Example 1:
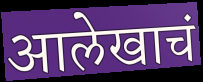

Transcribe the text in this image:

आलेखाचं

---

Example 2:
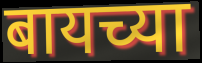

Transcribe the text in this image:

बायच्या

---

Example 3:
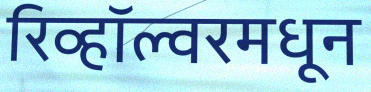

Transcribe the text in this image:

रिव्हॉल्वरमधून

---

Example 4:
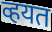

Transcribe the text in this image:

व्हयत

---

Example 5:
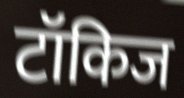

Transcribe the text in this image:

टॉकिज